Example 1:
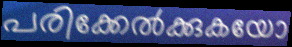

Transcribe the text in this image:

പരിക്കേൽക്കുകയോ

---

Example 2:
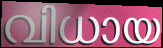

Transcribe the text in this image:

വിധായ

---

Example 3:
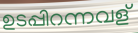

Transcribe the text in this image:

ഉടപ്പിറന്നവള്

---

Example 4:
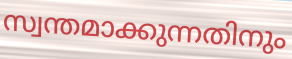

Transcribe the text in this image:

സ്വന്തമാക്കുന്നതിനും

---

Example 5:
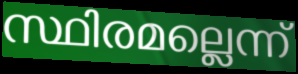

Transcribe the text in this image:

സ്ഥിരമല്ലെന്ന്